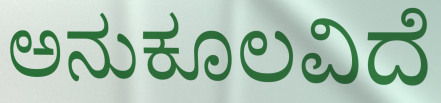
ಅನುಕೂಲವಿದೆ